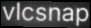
vlcsnap